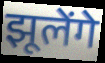
झूलेंगे